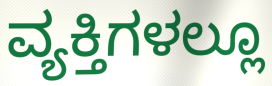
ವ್ಯಕ್ತಿಗಳಲ್ಲೂ